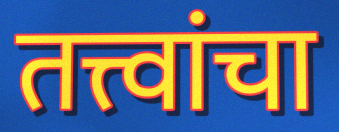
तत्त्वांचा